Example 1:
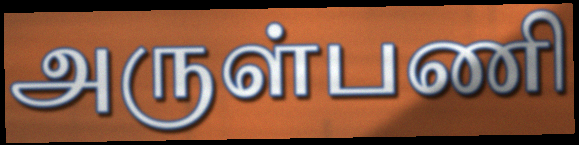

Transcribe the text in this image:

அருள்பணி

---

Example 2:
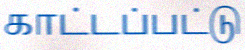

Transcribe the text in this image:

காட்டப்பட்டு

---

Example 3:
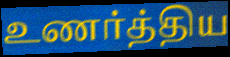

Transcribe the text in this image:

உணர்த்திய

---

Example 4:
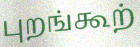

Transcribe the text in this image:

புறங்கூற்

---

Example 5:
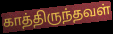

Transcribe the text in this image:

காத்திருந்தவள்